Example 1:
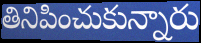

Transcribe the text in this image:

తినిపించుకున్నారు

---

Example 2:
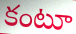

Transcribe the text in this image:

కంటూ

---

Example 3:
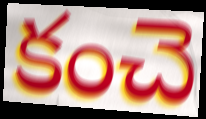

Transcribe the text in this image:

కంచె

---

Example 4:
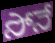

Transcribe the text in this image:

సోనే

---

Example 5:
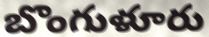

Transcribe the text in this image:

బొంగుళూరు